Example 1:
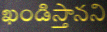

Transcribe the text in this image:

ఖండిస్తానని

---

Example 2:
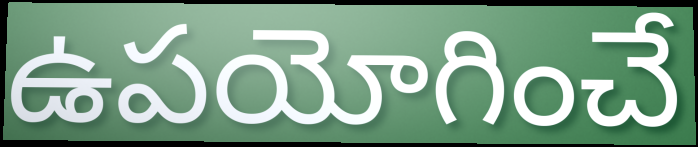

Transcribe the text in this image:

ఉపయోగించే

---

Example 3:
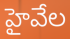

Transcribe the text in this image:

హైవేల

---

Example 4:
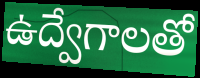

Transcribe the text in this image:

ఉద్వేగాలతో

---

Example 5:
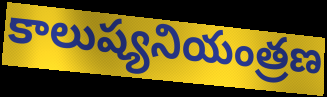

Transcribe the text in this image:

కాలుష్యనియంత్రణ